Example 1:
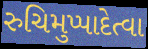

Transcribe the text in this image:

રુચિમુપ્પાદેત્વા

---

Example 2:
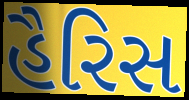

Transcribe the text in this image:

હૈરિસ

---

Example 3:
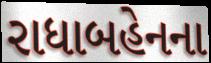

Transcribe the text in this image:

રાધાબહેનના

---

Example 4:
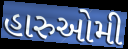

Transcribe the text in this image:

હારુઓમી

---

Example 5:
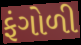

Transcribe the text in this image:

ફંગોળી